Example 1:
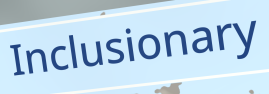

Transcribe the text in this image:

Inclusionary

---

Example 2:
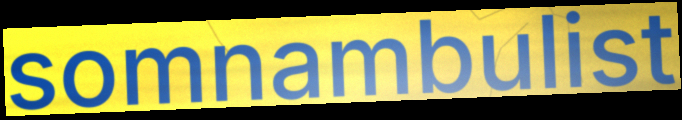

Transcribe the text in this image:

somnambulist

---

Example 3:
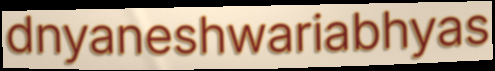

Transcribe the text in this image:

dnyaneshwariabhyas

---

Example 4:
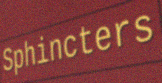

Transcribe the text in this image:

Sphincters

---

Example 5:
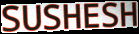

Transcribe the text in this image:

SUSHESH